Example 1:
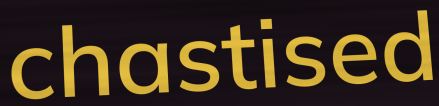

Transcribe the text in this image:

chastised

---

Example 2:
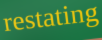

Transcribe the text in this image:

restating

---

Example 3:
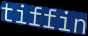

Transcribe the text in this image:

tiffin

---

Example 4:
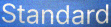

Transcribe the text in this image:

Standard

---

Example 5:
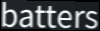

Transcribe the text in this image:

batters